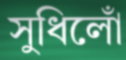
সুধিলোঁ